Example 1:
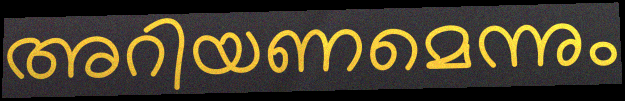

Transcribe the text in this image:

അറിയണമെന്നും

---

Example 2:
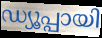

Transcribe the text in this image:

ഡ്യൂപ്പായി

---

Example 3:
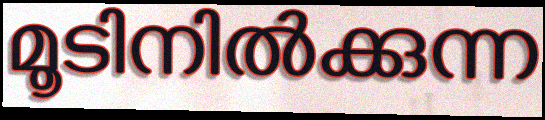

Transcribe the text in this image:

മൂടിനിൽക്കുന്ന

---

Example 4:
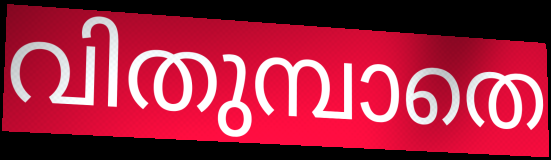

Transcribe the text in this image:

വിതുമ്പാതെ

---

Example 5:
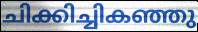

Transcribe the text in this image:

ചിക്കിച്ചികഞ്ഞു